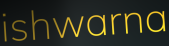
ishwarna